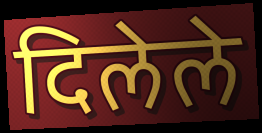
दिलेले